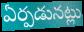
ఏర్పడునట్లు